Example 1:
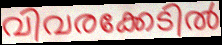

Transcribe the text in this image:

വിവരക്കേടിൽ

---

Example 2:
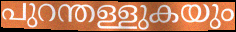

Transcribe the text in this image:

പുറന്തള്ളുകയും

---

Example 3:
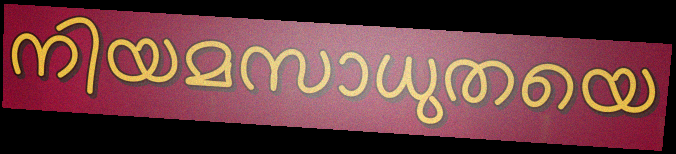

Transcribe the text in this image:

നിയമസാധുതയെ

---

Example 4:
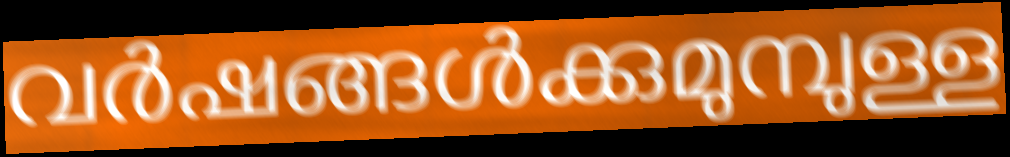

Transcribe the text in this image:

വർഷങ്ങൾക്കുമുമ്പുള്ള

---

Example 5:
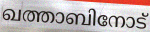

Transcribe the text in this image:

ഖത്താബിനോട്